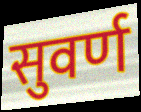
सुवर्ण